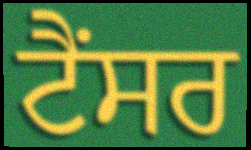
ਟੈਂਸਰ